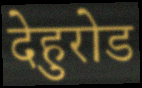
देहुरोड